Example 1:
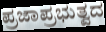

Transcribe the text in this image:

ಪ್ರಜಾಪ್ರಭುತ್ವದ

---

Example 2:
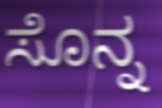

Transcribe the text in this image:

ಸೊನ್ನ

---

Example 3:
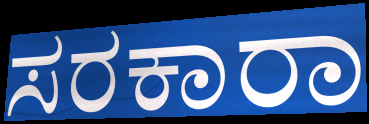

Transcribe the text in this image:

ಸರಕಾರಾ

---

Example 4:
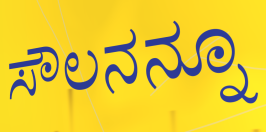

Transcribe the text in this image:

ಸೌಲನನ್ನೂ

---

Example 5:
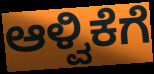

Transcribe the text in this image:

ಆಳ್ವಿಕೆಗೆ